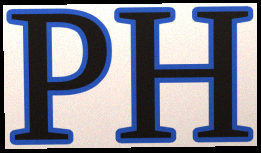
PH